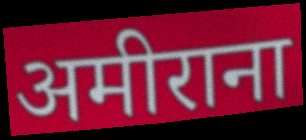
अमीराना